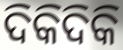
ଦିକିଦିକି